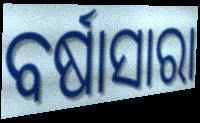
ବର୍ଷାସାରା